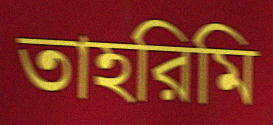
তাহরিমি